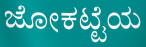
ಜೋಕಟ್ಟೆಯ